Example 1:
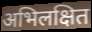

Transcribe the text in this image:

अभिलक्षित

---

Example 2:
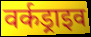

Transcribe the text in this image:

वर्कड्राइव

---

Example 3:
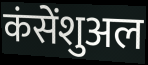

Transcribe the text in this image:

कंसेंशुअल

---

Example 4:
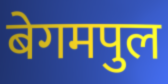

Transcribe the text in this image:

बेगमपुल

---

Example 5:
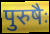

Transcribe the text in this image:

पुरुषैः